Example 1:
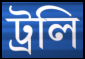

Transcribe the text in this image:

ট্রলি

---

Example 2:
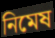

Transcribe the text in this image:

নিমেষ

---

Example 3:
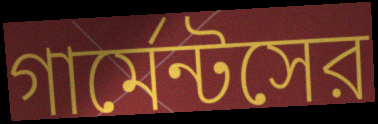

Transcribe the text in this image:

গার্মেন্টসের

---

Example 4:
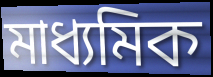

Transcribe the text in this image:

মাধ্যমিক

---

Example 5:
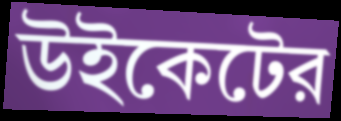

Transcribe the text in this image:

উইকেটের